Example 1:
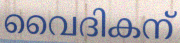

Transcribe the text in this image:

വൈദികന്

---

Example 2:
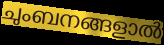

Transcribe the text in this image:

ചുംബനങ്ങളാൽ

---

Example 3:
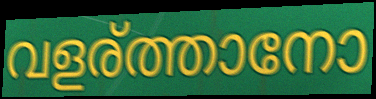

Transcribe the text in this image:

വളര്ത്താനോ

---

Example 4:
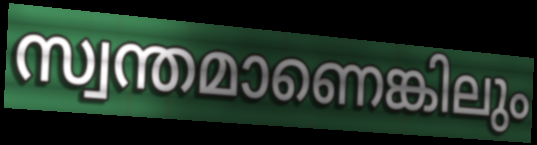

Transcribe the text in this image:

സ്വന്തമാണെങ്കിലും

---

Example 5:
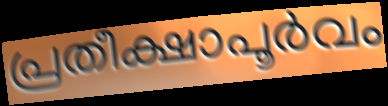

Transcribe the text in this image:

പ്രതീക്ഷാപൂർവം